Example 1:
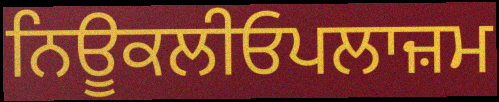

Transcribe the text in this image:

ਨਿਊਕਲੀਓਪਲਾਜ਼ਮ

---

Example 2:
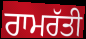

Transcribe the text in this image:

ਰਾਮਰੱਤੀ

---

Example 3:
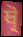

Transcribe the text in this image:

ਥ੍ਰੋ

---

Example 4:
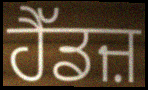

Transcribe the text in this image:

ਹੈੱਡਜ਼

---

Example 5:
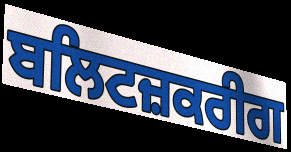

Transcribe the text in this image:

ਬਲਿਟਜ਼ਕਰੀਗ